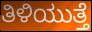
ತಿಳಿಯುತ್ತೆ